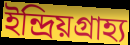
ইন্দ্রিয়গ্রাহ্য